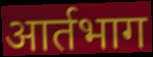
आर्तभाग